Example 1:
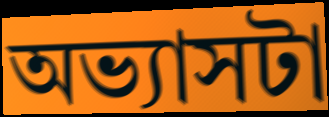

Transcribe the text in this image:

অভ্যাসটা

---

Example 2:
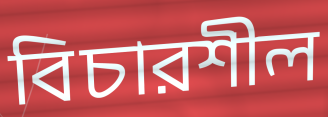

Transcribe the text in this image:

বিচারশীল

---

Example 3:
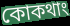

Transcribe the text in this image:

কোকথাং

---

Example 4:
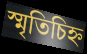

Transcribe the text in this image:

স্মৃতিচিহ্ন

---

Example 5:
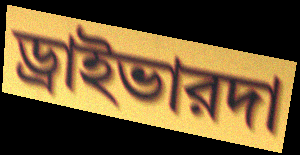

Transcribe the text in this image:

ড্রাইভারদা